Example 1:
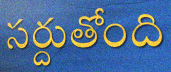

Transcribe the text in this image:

సర్దుతోంది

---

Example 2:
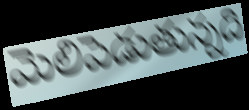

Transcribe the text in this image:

మెలిపెడుతున్నది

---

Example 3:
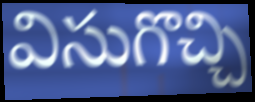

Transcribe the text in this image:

విసుగొచ్చి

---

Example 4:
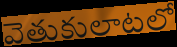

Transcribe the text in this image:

వెతుకులాటలో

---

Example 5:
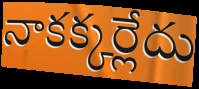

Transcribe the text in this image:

నాకక్కర్లేదు